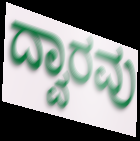
ದ್ವಾರವು